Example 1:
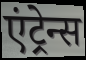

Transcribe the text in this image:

एंट्रेन्स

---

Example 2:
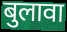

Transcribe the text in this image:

बुलावा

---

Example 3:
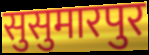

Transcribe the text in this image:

सुसुमारपुर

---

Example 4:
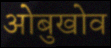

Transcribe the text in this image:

ओबुखोव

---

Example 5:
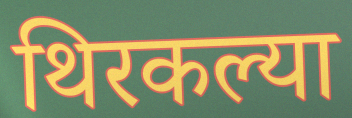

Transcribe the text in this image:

थिरकल्या